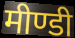
मीण्‍डी